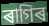
ৰাগিৰ